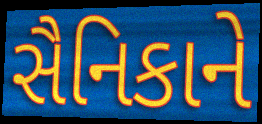
સૈનિકાને